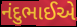
નંદુભાઈએ